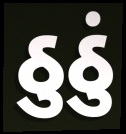
ઠુઠું